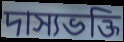
দাস্যভক্তি